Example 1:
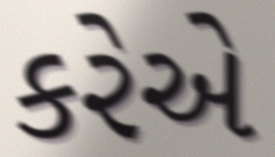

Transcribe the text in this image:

કરેએ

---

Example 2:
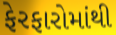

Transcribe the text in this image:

ફેરફારોમાંથી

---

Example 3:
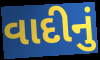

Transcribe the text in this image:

વાદીનું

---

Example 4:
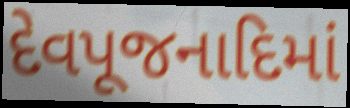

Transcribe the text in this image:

દેવપૂજનાદિમાં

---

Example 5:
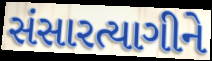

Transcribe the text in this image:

સંસારત્યાગીને